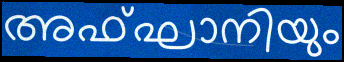
അഫ്ഘാനിയും